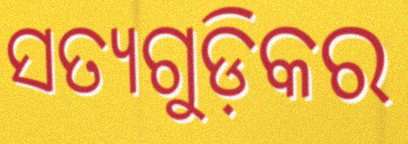
ସତ୍ୟଗୁଡ଼ିକର